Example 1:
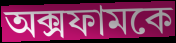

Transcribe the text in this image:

অক্সফামকে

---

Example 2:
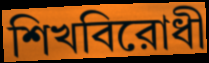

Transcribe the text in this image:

শিখবিরোধী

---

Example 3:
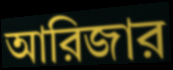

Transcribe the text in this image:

আরিজার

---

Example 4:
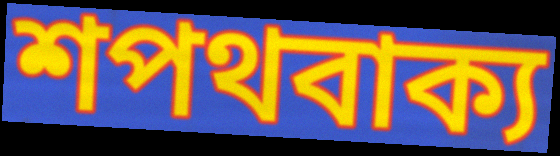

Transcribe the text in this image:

শপথবাক্য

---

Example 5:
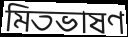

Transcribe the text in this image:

মিতভাষণ